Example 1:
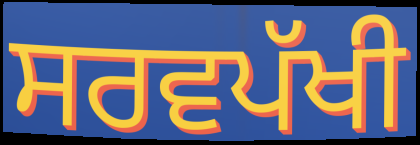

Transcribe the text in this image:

ਸਰਵਪੱਖੀ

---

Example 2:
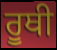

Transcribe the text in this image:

ਰੂਥੀ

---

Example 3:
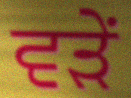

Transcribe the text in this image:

ਵੜੇਂ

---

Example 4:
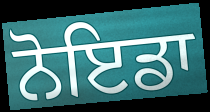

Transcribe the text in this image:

ਨੋਇਡਾ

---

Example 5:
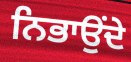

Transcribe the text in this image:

ਨਿਭਾਉਂਦੇ